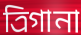
ত্রিগানা